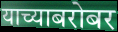
याच्याबरोबर